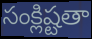
సంక్లిష్టతా